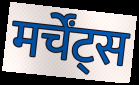
मर्चेंट्स